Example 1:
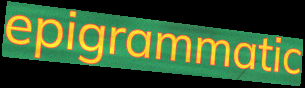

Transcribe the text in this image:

epigrammatic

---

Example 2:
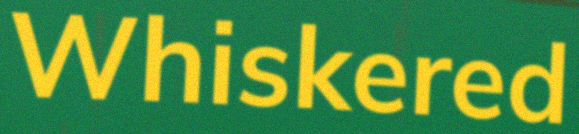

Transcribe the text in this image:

Whiskered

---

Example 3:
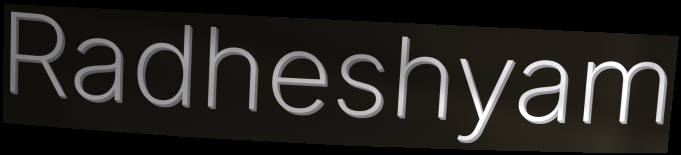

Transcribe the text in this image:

Radheshyam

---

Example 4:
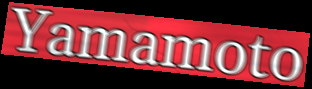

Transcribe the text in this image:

Yamamoto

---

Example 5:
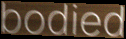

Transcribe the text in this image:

bodied